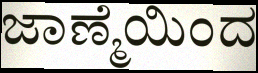
ಜಾಣ್ಮೆಯಿಂದ